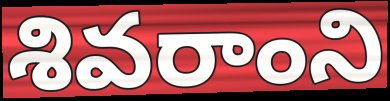
శివరాంని